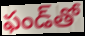
ఫండ్‌తో